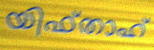
യിഫ്താഹ്